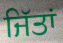
ਜਿੱਤਾਂ